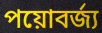
পয়োবর্জ্য